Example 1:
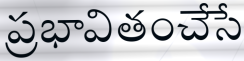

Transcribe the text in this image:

ప్రభావితంచేసే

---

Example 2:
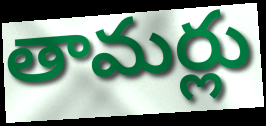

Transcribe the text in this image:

తామర్లు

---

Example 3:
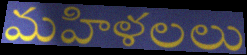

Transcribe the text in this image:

మహిళలలు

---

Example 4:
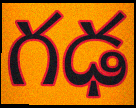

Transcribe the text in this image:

గఢ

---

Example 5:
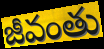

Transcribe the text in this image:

జీవంతు